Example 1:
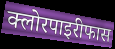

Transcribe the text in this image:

क्लोरपाइरीफास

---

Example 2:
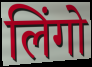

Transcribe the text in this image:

लिंगो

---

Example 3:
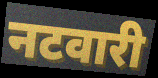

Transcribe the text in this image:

नटवारी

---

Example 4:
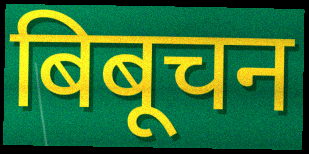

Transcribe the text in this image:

बिबूचन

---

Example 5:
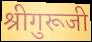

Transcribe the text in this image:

श्रीगुरूजी